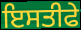
ਇਸਤੀਫੇ